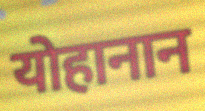
योहानान